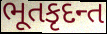
ભૂતકૃદન્ત